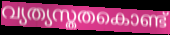
വ്യത്യസ്തതകൊണ്ട്